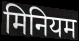
मिनियम